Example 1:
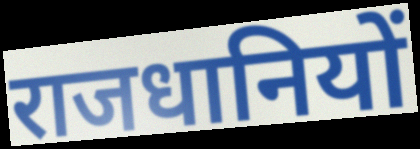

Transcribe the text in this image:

राजधानियों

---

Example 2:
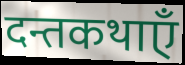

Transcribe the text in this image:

दन्तकथाएँ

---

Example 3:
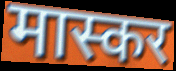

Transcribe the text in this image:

मास्कर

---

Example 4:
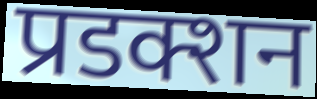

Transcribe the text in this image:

प्रडक्शन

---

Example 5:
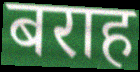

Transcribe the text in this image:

बराह